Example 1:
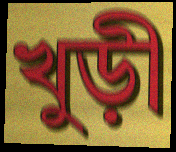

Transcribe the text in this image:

খুড়ী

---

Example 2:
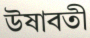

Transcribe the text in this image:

উষাবতী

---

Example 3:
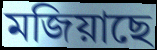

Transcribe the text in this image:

মজিয়াছে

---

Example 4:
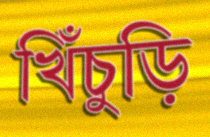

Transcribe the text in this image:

খিঁচুড়ি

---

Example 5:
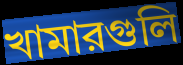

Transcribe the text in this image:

খামারগুলি